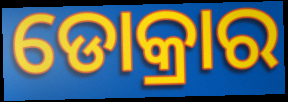
ଡୋକ୍ରାର